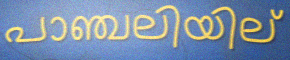
പാഞ്ചലിയില്